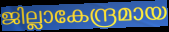
ജില്ലാകേന്ദ്രമായ